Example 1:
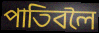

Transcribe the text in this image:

পাতিবলৈ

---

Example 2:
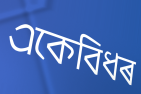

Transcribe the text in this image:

একেবিধৰ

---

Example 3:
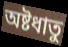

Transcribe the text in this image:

অষ্টধাতু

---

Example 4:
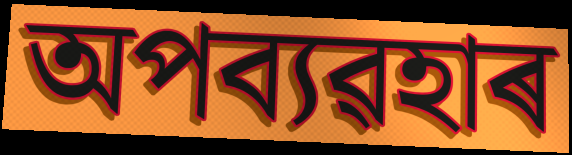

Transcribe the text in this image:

অপব্যৱহাৰ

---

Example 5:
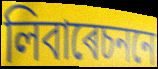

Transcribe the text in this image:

লিবাৰেচননে